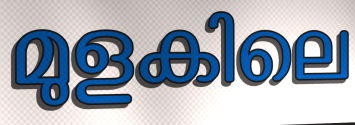
മുളകിലെ